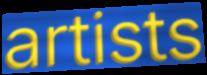
artists